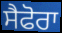
ਸੈਫੋਰਾ